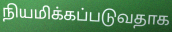
நியமிக்கப்படுவதாக